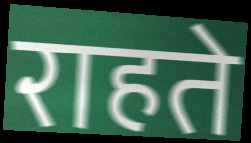
राहते